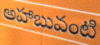
అహాబువంటి